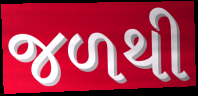
જળથી